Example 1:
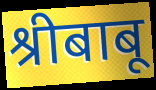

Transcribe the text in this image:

श्रीबाबू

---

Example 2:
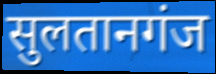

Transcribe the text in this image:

सुलतानगंज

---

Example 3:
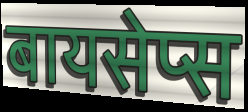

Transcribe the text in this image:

बायसेप्स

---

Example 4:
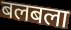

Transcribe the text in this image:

बलबला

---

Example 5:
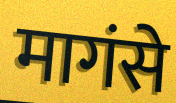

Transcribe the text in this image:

मागंसे